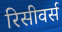
रिसीवर्स